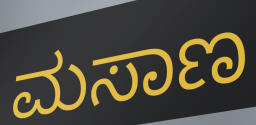
ಮಸಾಣ